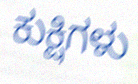
ಕುಕ್ಷಿಗಳು